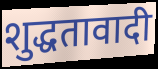
शुद्धतावादी